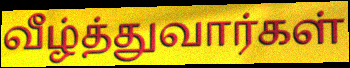
வீழ்த்துவார்கள்